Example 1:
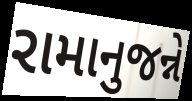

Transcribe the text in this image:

રામાનુજન્ને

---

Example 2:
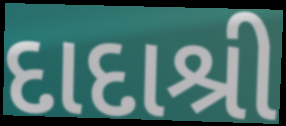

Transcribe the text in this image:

દાદાશ્રી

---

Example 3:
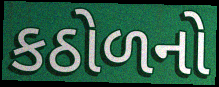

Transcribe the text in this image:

કઠોળનો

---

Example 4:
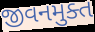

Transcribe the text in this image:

જીવનમુક્ત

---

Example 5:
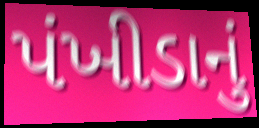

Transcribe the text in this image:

પંખીડાનું